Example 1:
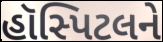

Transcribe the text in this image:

હૉસ્પિટલને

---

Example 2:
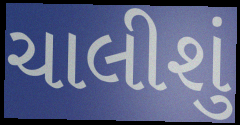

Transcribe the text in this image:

ચાલીશું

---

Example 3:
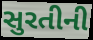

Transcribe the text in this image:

સુરતીની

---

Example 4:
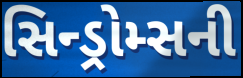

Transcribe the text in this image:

સિન્ડ્રોમ્સની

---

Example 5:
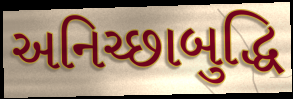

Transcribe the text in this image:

અનિચ્છાબુદ્ધિ